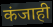
कंजाही